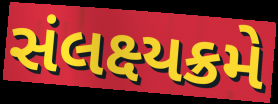
સંલક્ષ્યક્રમે